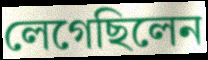
লেগেছিলেন